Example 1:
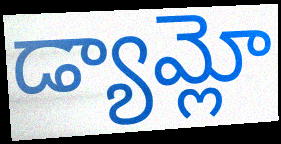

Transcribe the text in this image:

డ్యామ్లో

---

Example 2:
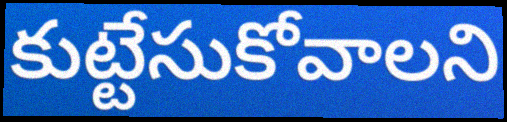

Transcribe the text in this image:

కుట్టేసుకోవాలని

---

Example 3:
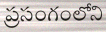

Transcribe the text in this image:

ప్రసంగంలోని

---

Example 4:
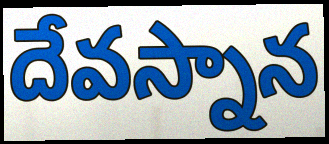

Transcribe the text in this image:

దేవస్నాన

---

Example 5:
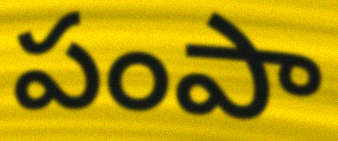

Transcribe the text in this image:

పంపా